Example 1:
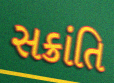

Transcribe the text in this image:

સક્રાંતિ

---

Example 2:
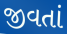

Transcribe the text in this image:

જીવતાં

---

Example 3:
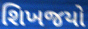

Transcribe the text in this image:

શિખજયો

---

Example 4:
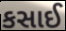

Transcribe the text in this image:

કસાઈ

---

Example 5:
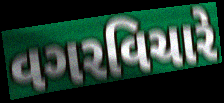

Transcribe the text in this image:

વગરવિચારે